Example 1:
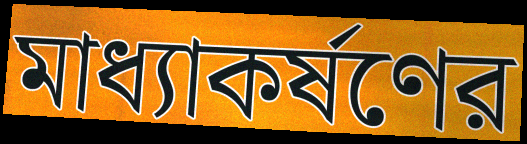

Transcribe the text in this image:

মাধ্যাকর্ষণের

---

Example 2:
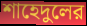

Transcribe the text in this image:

শাহেদুলের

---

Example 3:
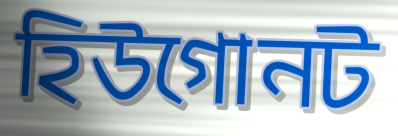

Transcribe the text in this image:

হিউগোনট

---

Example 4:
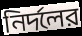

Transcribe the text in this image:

নির্দলের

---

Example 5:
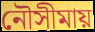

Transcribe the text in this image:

নৌসীমায়